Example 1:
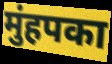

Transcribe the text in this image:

मुंहपका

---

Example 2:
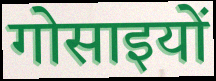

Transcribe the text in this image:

गोसाइयों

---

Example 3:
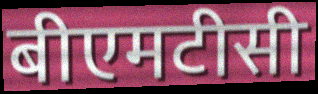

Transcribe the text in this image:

बीएमटीसी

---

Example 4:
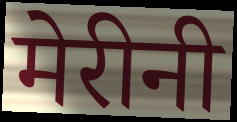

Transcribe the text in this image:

मेरीनी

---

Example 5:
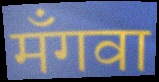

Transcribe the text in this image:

मँगवा